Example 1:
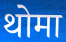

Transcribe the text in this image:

थोमा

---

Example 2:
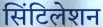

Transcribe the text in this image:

सिंटिलेशन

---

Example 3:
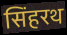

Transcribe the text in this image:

सिंहरथ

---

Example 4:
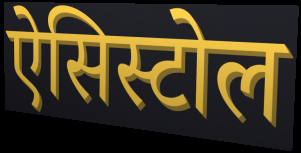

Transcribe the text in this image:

ऐसिस्टोल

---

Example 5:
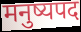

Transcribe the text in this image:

मनुष्यपद